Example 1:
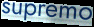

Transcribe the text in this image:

supremo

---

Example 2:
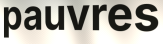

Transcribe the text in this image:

pauvres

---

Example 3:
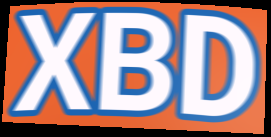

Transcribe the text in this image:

XBD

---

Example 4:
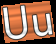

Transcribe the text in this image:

Uu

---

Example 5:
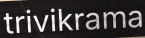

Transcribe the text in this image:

trivikrama